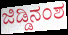
ಜಿಡ್ಡಿನಂಶ